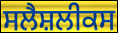
ਸਲੈਸ਼ਲੀਕਸ